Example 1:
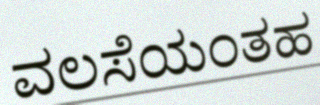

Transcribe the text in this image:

ವಲಸೆಯಂತಹ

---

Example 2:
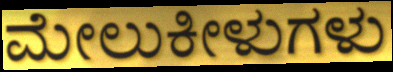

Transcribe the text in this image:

ಮೇಲುಕೀಳುಗಳು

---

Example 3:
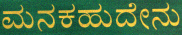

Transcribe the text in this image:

ಮನಕಹುದೇನು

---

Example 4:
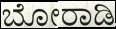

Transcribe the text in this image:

ಬೋರಾಡಿ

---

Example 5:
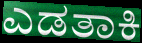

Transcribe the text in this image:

ಎಡತಾಕಿ